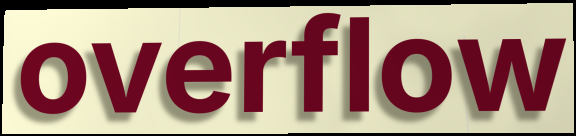
overflow